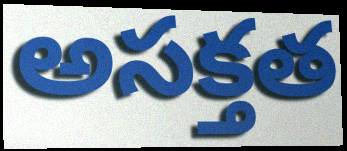
అసక్తత